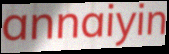
annaiyin